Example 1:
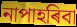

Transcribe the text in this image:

নাপাহৰিবা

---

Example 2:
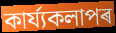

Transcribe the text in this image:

কাৰ্য্যকলাপৰ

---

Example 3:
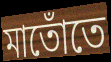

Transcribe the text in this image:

মাতোঁতে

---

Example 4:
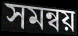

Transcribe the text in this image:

সমন্বয়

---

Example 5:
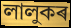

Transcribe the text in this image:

লালুকৰ